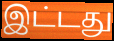
இட்டது